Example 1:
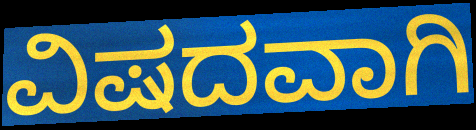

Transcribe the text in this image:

ವಿಷದವಾಗಿ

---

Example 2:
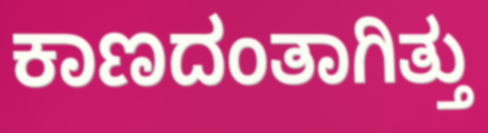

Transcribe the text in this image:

ಕಾಣದಂತಾಗಿತ್ತು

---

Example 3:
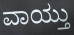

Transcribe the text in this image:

ವಾಯ್ತು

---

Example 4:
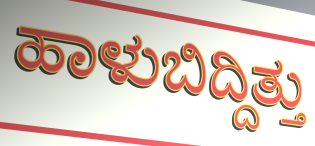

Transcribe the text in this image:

ಹಾಳುಬಿದ್ದಿತ್ತು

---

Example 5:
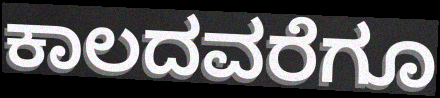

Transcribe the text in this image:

ಕಾಲದವರೆಗೂ